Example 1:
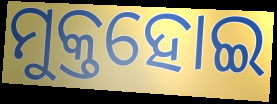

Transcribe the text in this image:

ମୁକ୍ତହୋଇ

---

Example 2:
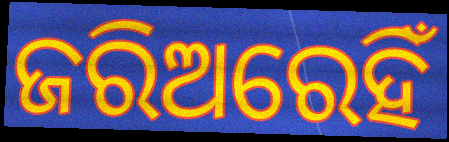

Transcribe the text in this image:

ଜରିଅରେହିଁ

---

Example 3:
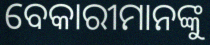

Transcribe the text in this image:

ବେକାରୀମାନଙ୍କୁ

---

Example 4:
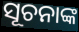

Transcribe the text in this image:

ସୂଚନାଙ୍କ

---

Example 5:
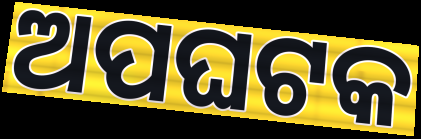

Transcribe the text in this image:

ଅପଘଟକ